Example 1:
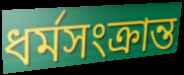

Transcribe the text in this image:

ধর্মসংক্রান্ত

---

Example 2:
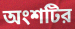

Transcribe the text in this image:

অংশটির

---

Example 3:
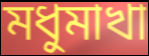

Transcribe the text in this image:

মধুমাখা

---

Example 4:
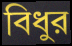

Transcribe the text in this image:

বিধুর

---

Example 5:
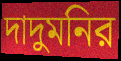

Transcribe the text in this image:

দাদুমনির